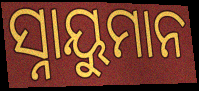
ସ୍ନାୟୁମାନ